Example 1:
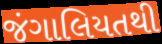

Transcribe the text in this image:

જંગાલિયતથી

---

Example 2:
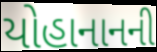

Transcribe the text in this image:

યોહાનાનની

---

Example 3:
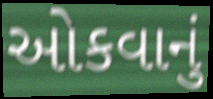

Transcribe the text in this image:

ઓકવાનું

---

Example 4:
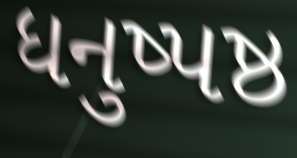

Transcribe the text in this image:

ધનુષ્પષ્ઠ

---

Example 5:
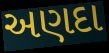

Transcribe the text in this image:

અણદા